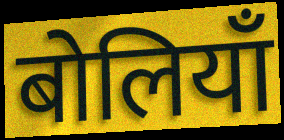
बोलियाँ